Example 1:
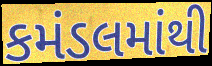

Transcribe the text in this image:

કમંડલમાંથી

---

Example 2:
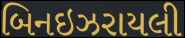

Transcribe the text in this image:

બિનઇઝરાયલી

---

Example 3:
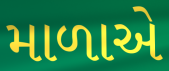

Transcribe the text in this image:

માળાએ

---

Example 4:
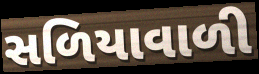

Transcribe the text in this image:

સળિયાવાળી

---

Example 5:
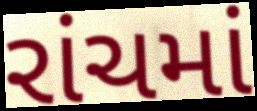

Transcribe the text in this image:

રાંચમાં